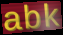
abk